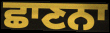
ਛਾਣਨਾ